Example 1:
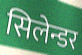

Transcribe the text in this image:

सिलेन्डर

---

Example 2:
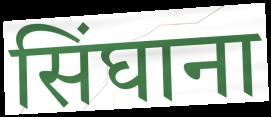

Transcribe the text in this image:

सिंघाना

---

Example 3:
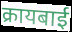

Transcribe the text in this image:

क्रायबाई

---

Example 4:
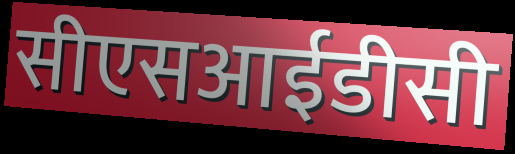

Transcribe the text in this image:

सीएसआईडीसी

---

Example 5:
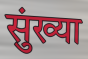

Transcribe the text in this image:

सुंख्या